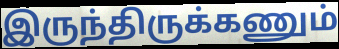
இருந்திருக்கணும்